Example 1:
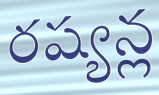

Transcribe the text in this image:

రష్యన్ల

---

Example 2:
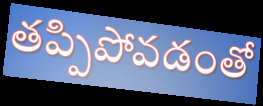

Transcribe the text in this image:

తప్పిపోవడంతో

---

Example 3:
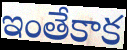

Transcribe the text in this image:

ఇంతేకాక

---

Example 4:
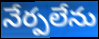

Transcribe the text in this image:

నేర్పలేను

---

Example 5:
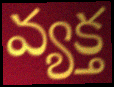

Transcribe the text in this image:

వ్యక్త